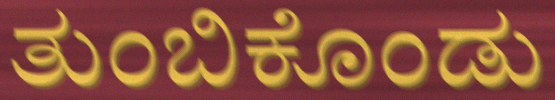
ತುಂಬಿಕೊಂಡು